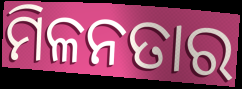
ମିଳନତାର